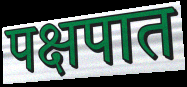
पक्षपात